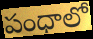
పంధాలో